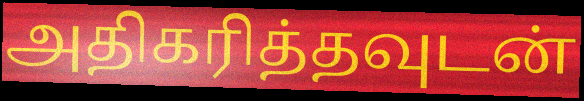
அதிகரித்தவுடன்